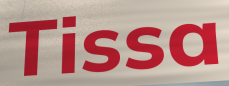
Tissa